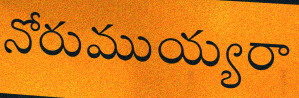
నోరుముయ్యరా